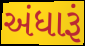
અંધારૂં